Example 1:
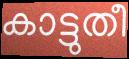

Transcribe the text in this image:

കാട്ടുതീ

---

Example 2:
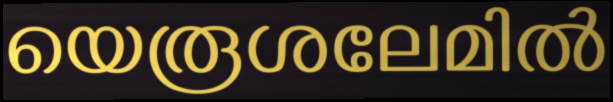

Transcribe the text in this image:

യെരൂശലേമിൽ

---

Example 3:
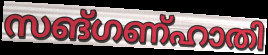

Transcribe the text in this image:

സങ്ഗണ്ഹാതി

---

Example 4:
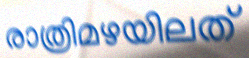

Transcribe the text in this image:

രാത്രിമഴയിലത്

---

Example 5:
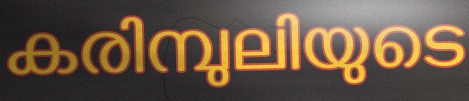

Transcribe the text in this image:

കരിമ്പുലിയുടെ